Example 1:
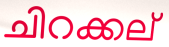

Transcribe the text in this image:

ചിറക്കല്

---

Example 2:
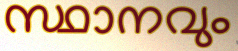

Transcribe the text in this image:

സ്ഥാനവും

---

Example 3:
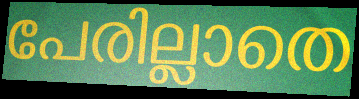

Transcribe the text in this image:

പേരില്ലാതെ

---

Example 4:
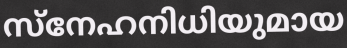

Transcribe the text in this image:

സ്നേഹനിധിയുമായ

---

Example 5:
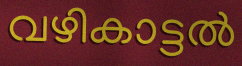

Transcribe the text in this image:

വഴികാട്ടൽ